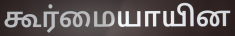
கூர்மையாயின